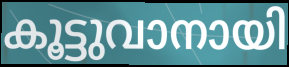
കൂട്ടുവാനായി